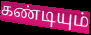
கண்டியும்